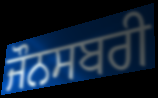
ਜੌਨਸਬਰੀ